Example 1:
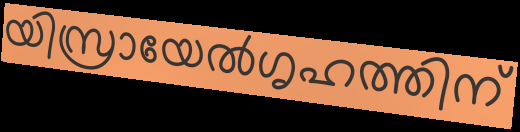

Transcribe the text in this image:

യിസ്രായേൽഗൃഹത്തിന്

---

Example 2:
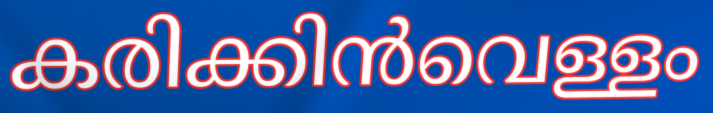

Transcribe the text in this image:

കരിക്കിൻവെള്ളം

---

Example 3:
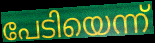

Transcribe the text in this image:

പേടിയെന്ന്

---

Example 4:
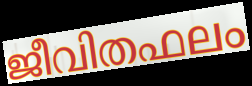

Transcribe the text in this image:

ജീവിതഫലം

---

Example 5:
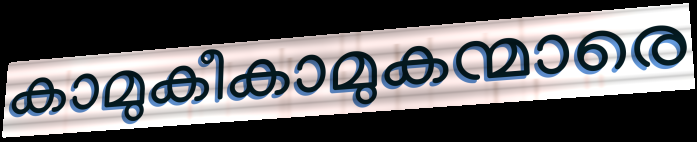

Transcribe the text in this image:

കാമുകീകാമുകന്മാരെ